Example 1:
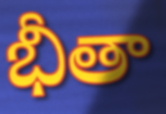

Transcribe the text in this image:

భీతా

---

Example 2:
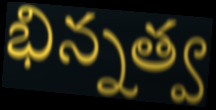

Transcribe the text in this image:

భిన్నత్వ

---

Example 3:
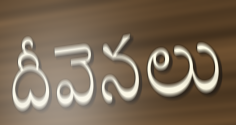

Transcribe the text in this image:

దీవెనలు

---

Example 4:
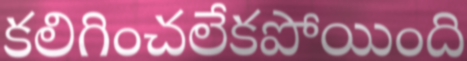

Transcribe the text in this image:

కలిగించలేకపోయింది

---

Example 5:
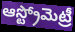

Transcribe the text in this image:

ఆస్ట్రోమెట్రీ